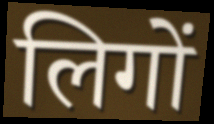
लिगों